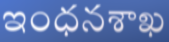
ఇంధనశాఖ